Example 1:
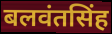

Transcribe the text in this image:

बलवंतसिंह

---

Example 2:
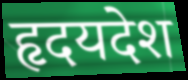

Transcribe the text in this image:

हृदयदेश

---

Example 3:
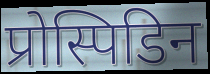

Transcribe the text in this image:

प्रोस्पिडिन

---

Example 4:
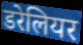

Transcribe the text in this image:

डरेलियर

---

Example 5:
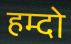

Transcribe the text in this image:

हम्दो